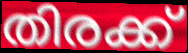
തിരക്ക്